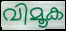
വിമൂക